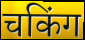
चकिंग